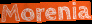
Morenia